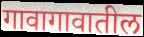
गावागावातील